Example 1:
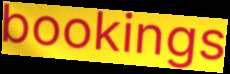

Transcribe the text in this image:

bookings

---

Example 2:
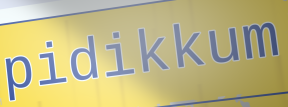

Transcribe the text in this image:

pidikkum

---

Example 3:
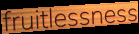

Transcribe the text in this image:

fruitlessness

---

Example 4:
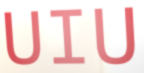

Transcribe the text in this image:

UIU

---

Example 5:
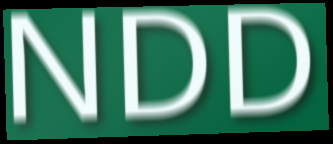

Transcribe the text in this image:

NDD